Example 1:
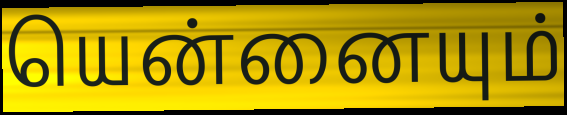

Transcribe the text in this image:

யென்னையும்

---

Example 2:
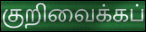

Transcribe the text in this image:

குறிவைக்கப்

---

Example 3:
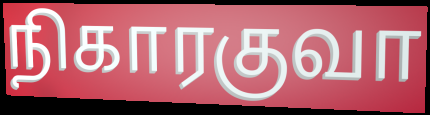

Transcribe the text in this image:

நிகாரகுவா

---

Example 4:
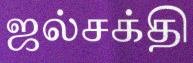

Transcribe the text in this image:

ஜல்சக்தி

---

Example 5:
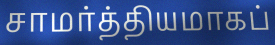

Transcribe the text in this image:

சாமர்த்தியமாகப்